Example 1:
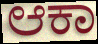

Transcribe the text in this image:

ಆಕಾ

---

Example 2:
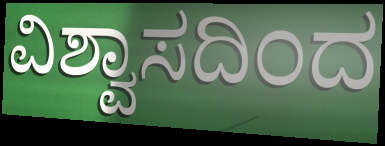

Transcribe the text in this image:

ವಿಶ್ವಾಸದಿಂದ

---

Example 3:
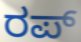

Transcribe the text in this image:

ರಪ್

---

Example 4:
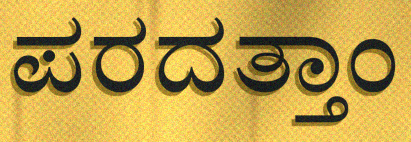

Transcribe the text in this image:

ಪರದತ್ತಾಂ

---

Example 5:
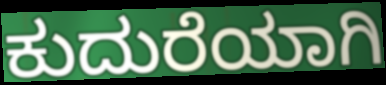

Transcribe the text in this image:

ಕುದುರೆಯಾಗಿ